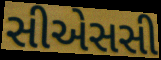
સીએસસી